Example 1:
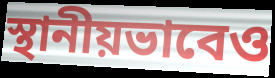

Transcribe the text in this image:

স্থানীয়ভাবেও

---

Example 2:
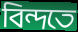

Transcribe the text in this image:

বিন্দতে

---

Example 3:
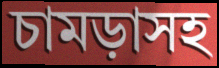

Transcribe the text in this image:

চামড়াসহ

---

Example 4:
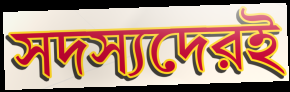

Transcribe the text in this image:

সদস্যদেরই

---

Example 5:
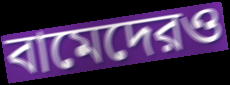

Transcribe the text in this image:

বামেদেরও